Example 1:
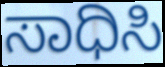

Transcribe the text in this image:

ಸಾಧಿಸಿ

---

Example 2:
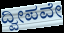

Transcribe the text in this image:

ದ್ವೀಪವೇ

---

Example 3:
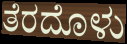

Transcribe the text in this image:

ತೆರದೊಳು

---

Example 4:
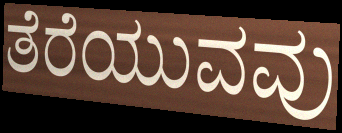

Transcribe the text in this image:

ತೆರೆಯುವವು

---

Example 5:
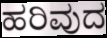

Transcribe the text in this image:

ಹರಿವುದ